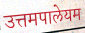
उत्तमपालेयम